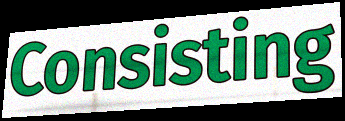
Consisting